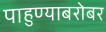
पाहुण्याबरोबर